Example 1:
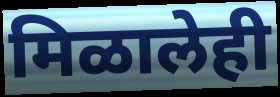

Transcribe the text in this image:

मिळालेही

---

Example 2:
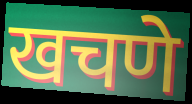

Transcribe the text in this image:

खचणे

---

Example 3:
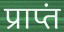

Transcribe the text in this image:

प्राप्तं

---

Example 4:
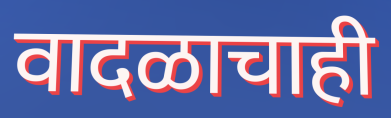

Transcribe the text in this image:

वादळाचाही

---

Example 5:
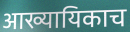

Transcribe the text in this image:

आख्यायिकाच